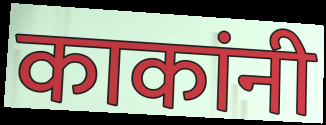
काकांनी